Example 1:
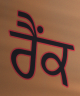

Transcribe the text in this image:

ਰੈੰਕ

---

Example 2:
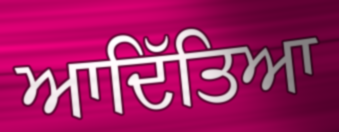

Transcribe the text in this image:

ਆਦਿੱਤਿਆ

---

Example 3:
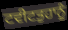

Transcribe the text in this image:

ਟਵੀਟਤੁਹਾਨੂੰ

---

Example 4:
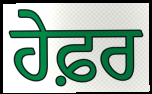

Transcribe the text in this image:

ਹੇਫ਼ਰ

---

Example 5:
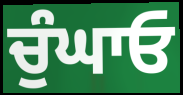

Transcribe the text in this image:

ਚੁੰਘਾਓ